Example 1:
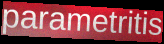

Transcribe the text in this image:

parametritis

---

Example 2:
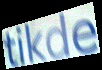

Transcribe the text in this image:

tikde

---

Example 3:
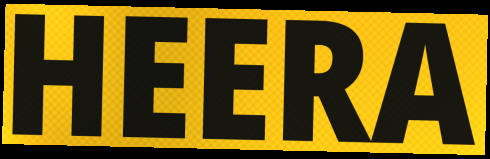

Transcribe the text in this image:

HEERA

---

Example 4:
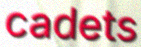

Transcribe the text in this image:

cadets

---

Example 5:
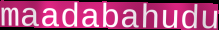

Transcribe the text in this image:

maadabahudu